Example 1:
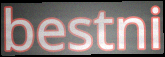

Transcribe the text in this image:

bestni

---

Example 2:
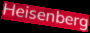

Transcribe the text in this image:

Heisenberg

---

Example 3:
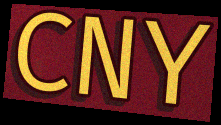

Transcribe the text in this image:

CNY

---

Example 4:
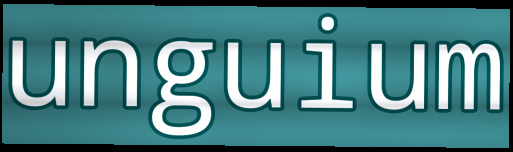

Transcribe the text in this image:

unguium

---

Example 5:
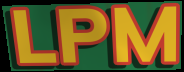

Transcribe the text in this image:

LPM